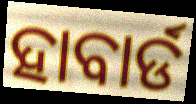
ହାବାର୍ଡ